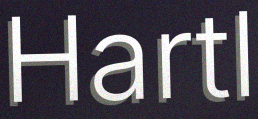
Hartl